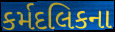
કર્મદલિકના